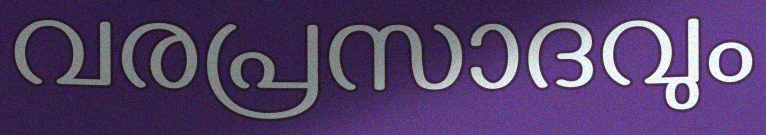
വരപ്രസാദവും